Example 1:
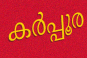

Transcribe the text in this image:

കർപ്പൂര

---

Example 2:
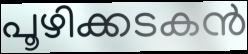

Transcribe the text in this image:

പൂഴിക്കടകൻ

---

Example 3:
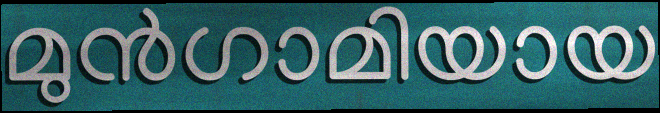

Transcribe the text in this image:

മുൻഗാമിയായ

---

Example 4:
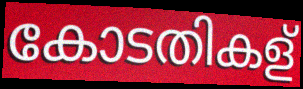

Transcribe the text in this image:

കോടതികള്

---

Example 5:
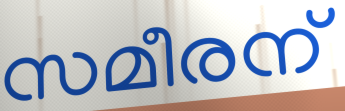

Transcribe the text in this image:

സമീരന്